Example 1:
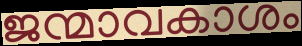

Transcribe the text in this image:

ജന്മാവകാശം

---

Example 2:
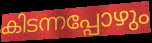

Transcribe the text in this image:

കിടന്നപ്പോഴും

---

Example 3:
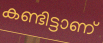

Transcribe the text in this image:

കണ്ടിട്ടാണ്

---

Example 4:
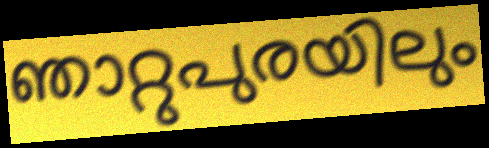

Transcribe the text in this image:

ഞാറ്റുപുരയിലും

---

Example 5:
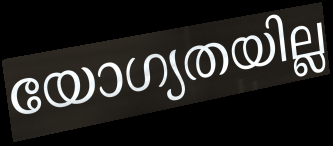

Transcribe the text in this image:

യോഗ്യതയില്ല